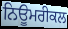
ਨਿਊਮਰੀਕਲ